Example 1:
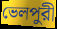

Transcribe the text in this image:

ভেলপুরী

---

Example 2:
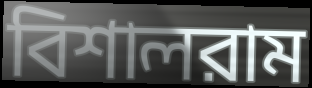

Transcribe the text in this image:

বিশালরাম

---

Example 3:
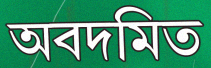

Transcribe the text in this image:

অবদমিত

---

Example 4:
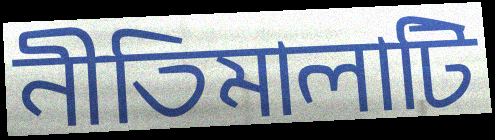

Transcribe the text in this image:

নীতিমালাটি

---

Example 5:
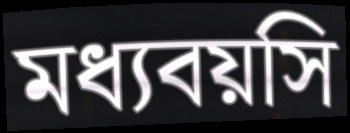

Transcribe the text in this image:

মধ্যবয়সি